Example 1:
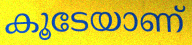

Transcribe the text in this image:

കൂടേയാണ്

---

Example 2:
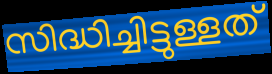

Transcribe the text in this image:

സിദ്ധിച്ചിട്ടുള്ളത്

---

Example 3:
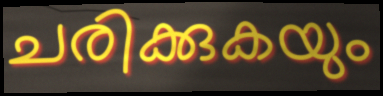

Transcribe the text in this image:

ചരിക്കുകയും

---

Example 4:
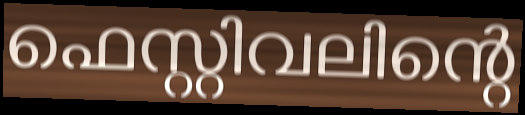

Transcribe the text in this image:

ഫെസ്റ്റിവലിന്റെ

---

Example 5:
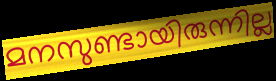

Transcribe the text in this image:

മനസുണ്ടായിരുന്നില്ല